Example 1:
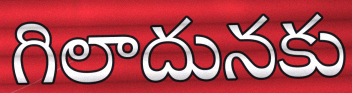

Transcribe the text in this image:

గిలాదునకు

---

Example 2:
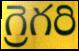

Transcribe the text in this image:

గ్రెగరి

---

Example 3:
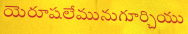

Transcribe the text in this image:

యెరూషలేమునుగూర్చియు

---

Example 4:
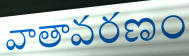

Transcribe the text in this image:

వాతావరణం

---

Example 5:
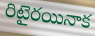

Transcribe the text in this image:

రిటైరయినాక